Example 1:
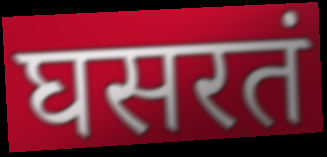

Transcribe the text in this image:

घसरतं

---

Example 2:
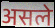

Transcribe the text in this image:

असले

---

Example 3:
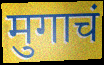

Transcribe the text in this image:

मुगाचं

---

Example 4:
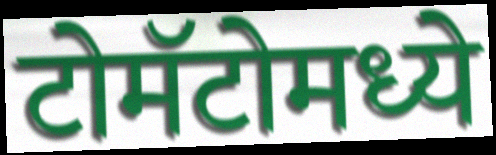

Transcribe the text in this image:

टोमॅटोमध्ये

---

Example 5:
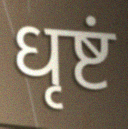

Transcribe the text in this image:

धृष्टं